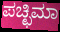
ಪಚ್ಛಿಮಾ